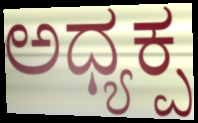
ಅಧ್ಯಕ್ಪ